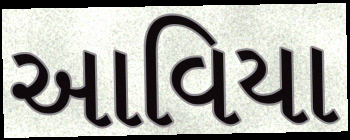
આવિયા